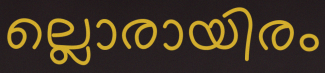
ല്ലൊരായിരം